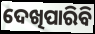
ଦେଖିପାରିବି